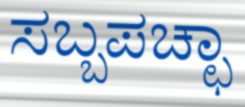
ಸಬ್ಬಪಚ್ಛಾ